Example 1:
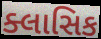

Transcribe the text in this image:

ક્લાસિક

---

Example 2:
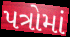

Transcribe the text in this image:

પત્રોમાં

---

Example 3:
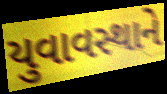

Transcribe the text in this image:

યુવાવસ્થાને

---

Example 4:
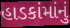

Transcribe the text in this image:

હાડકાંમાંનું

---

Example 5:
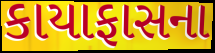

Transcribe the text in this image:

કાયાફાસના